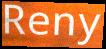
Reny